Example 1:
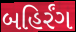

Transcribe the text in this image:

બહિર્રંગ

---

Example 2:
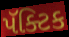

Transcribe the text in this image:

પૅક્ટિક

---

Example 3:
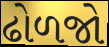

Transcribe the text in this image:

ઢોળજો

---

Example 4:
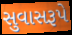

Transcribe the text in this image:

સુવાસરૂપે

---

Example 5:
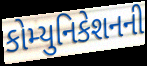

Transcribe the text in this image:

કોમ્યુનિકેશનની